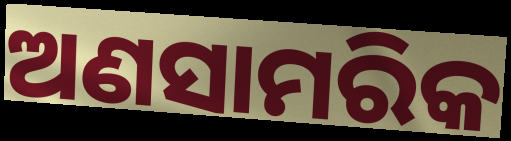
ଅଣସାମରିକ